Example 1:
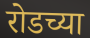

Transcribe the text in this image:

रोडच्या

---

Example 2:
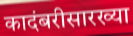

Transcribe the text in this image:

कादंबरीसारख्या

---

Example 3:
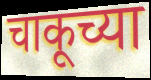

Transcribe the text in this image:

चाकूच्या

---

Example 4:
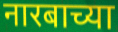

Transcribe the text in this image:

नारबाच्या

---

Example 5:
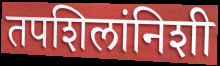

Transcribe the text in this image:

तपशिलांनिशी